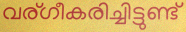
വര്ഗീകരിച്ചിട്ടുണ്ട്